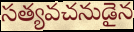
సత్యవచనుడైన